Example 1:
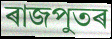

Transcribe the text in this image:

ৰাজপুতৰ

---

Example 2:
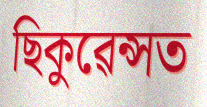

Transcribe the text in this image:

ছিকুৱেন্সত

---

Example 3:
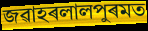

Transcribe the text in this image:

জৱাহৰলালপুৰমত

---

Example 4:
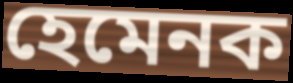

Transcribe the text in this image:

হেমেনক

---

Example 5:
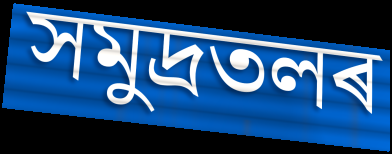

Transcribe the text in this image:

সমুদ্ৰতলৰ